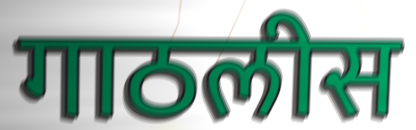
गाठलीस